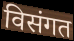
विसंगत